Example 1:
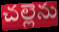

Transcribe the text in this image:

చల్లెను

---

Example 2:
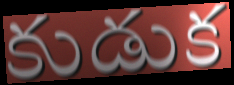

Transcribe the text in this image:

కుడుక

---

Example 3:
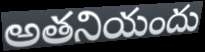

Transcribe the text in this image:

అతనియందు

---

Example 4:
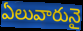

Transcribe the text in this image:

ఏలువారునై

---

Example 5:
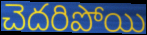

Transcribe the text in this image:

చెదరిపోయి